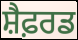
ਸ਼ੈਫ਼ਰਡ